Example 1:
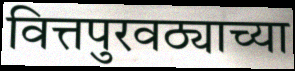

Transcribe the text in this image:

वित्तपुरवठ्याच्या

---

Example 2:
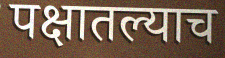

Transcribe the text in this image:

पक्षातल्याच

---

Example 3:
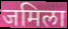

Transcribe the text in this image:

जमिला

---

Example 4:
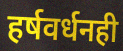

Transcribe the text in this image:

हर्षवर्धनही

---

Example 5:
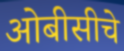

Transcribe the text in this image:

ओबीसीचे